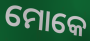
ମୋକେ